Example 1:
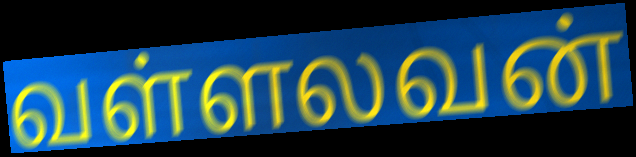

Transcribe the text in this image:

வள்ளலவன்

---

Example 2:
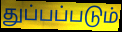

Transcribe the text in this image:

துப்பப்படும்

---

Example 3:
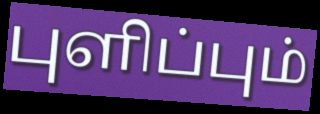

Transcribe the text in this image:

புளிப்பும்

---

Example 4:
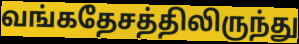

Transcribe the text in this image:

வங்கதேசத்திலிருந்து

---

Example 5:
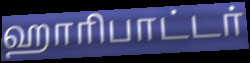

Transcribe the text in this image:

ஹாரிபாட்டர்